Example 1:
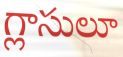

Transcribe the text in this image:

గ్లాసులూ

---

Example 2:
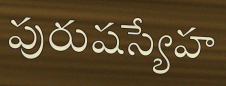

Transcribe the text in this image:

పురుషస్యేహ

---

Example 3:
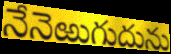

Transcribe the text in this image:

నేనెఱుగుదును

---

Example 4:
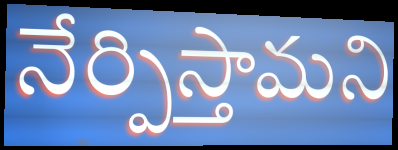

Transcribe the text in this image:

నేర్పిస్తామని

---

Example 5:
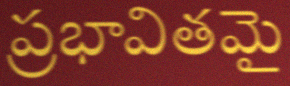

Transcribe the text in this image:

ప్రభావితమై